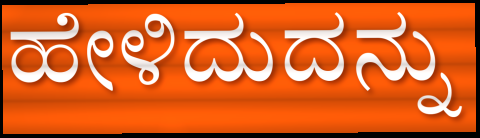
ಹೇಳಿದುದನ್ನು